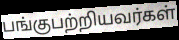
பங்குபற்றியவர்கள்